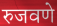
रुजवणे